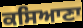
ਕਸਿਆਣਾ